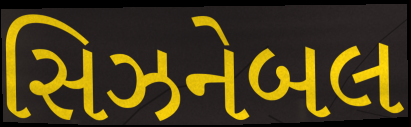
સિઝનેબલ